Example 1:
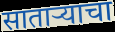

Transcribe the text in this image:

साताऱ्याचा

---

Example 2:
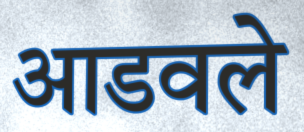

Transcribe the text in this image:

आडवले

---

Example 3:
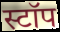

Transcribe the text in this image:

स्टॉप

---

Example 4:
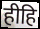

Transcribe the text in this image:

हीहि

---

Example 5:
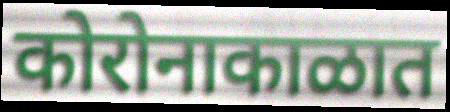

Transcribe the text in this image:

कोरोनाकाळात